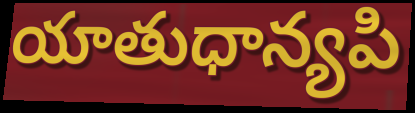
యాతుధాన్యపి